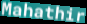
Mahathir